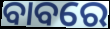
ବାବରେ